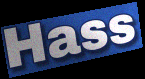
Hass